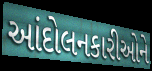
આંદોલનકારીઓને